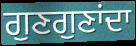
ਗੁਣਗੁਣਾਂਦਾ